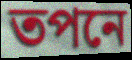
তপনে